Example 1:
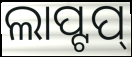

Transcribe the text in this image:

ଲାପ୍ଟପ୍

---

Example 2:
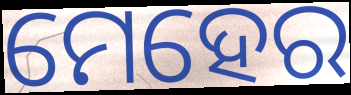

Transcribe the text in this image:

ମେହେର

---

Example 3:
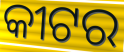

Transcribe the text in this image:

କୀଟର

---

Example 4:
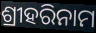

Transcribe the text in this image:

ଶ୍ରୀହରିନାମ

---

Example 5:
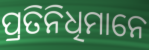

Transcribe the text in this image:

ପ୍ରତିନିଧିମାନେ